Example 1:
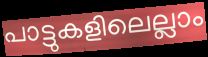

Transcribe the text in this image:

പാട്ടുകളിലെല്ലാം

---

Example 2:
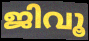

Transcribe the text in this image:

ജിവൂ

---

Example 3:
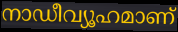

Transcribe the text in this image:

നാഡീവ്യൂഹമാണ്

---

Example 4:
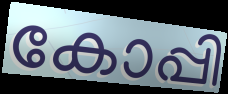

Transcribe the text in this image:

കോപ്പി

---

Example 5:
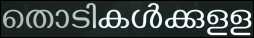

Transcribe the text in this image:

തൊടികൾക്കുളള